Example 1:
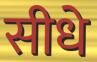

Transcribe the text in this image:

सीधे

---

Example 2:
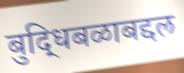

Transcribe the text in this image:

बुद्धिबळाबद्दल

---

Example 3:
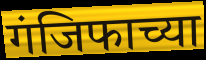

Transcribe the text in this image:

गंजिफाच्या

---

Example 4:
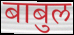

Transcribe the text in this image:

बाबुल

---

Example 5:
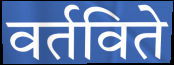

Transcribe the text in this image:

वर्तविते